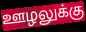
ஊழலுக்கு